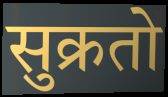
सुक्रतो